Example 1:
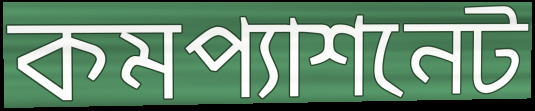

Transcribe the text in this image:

কমপ্যাশনেট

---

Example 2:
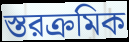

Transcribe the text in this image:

স্তরক্রমিক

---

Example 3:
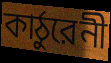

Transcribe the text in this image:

কাঠুরেনী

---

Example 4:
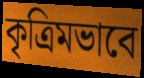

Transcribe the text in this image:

কৃত্রিমভাবে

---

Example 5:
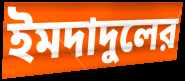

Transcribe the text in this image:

ইমদাদুলের